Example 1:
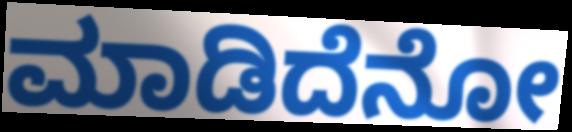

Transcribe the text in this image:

ಮಾಡಿದೆನೋ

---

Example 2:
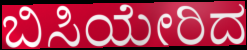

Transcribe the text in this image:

ಬಿಸಿಯೇರಿದ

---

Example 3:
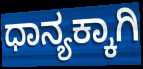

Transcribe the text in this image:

ಧಾನ್ಯಕ್ಕಾಗಿ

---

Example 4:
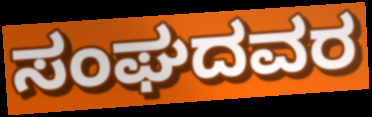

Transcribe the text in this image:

ಸಂಘದವರ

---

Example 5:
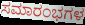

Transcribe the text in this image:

ಸಮಾರಂಭಗಳ